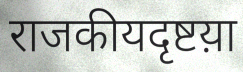
राजकीयदृष्टय़ा